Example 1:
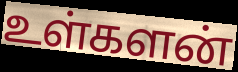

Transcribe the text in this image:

உள்களன்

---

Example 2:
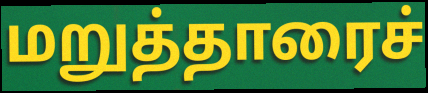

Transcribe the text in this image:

மறுத்தாரைச்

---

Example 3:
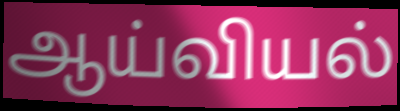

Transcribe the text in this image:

ஆய்வியல்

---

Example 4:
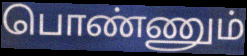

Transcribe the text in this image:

பொண்ணும்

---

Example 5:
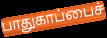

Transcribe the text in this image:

பாதுகாப்பைச்